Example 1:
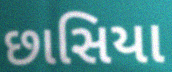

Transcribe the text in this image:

છાસિયા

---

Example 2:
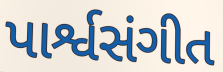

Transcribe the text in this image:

પાર્શ્વસંગીત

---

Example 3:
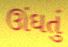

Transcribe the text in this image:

ઊંઘતું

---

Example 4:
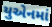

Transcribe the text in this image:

યુએનમાં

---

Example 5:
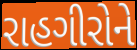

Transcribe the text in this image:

રાહગીરોને